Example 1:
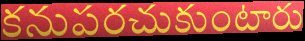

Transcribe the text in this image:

కనుపరచుకుంటారు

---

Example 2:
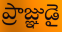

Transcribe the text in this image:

ప్రాజ్ఞుడై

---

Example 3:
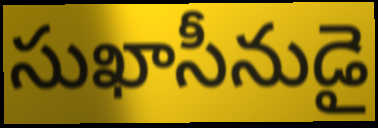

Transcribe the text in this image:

సుఖాసీనుడై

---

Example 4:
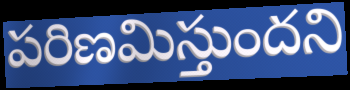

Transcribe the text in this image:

పరిణమిస్తుందని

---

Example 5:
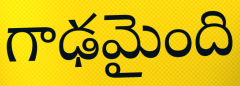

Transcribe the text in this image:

గాఢమైంది